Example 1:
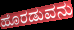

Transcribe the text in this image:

ಹೊರಡುವನು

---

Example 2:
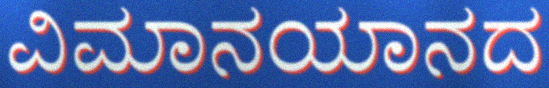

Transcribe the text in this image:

ವಿಮಾನಯಾನದ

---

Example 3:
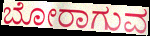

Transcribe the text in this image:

ಬೋರಾಗುವ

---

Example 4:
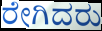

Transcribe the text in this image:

ರೇಗಿದರು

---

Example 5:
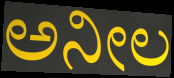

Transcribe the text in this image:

ಅನೀಲ